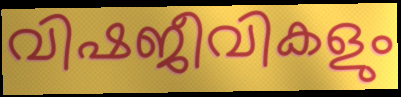
വിഷജീവികളും